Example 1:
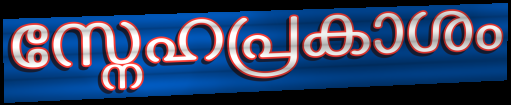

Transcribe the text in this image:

സ്നേഹപ്രകാശം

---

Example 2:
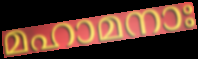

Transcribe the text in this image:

മഹാമനാഃ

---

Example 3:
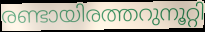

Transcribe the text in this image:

രണ്ടായിരത്തറുനൂറ്റി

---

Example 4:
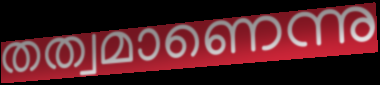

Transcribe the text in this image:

തത്വമാണെന്നു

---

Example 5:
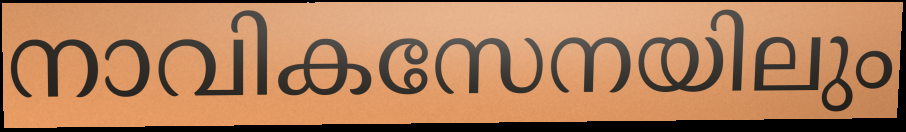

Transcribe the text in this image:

നാവികസേനയിലും